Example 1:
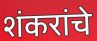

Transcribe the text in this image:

शंकरांचे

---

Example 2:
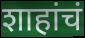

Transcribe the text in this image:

शाहांचं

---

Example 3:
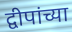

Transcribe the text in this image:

द्वीपांच्या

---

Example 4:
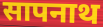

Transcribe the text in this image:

सापनाथ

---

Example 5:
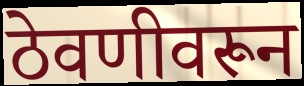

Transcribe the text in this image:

ठेवणीवरून